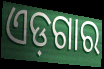
ଏଡ଼ଗାର